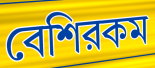
বেশিরকম